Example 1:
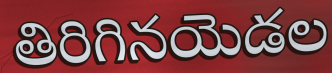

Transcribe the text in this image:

తిరిగినయెడల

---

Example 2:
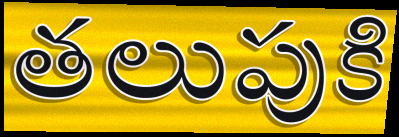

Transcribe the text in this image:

తలుపుకి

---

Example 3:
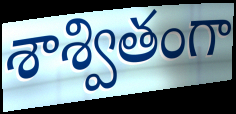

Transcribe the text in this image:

శాశ్వితంగా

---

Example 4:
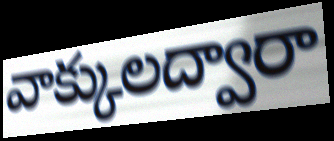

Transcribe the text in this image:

వాక్కులద్వారా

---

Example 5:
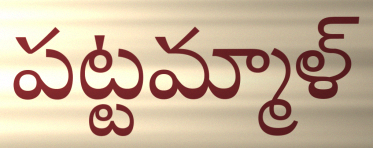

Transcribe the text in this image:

పట్టమ్మాళ్